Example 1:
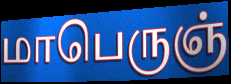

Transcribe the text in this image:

மாபெருஞ்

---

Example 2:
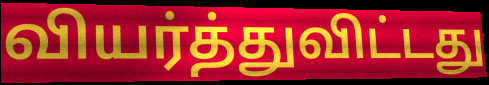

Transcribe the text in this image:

வியர்த்துவிட்டது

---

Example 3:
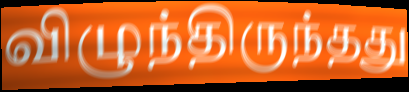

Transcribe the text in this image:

விழுந்திருந்தது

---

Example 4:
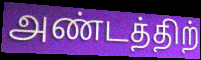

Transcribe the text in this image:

அண்டத்திற்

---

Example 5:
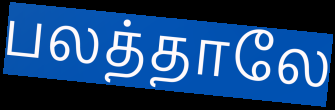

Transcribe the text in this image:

பலத்தாலே